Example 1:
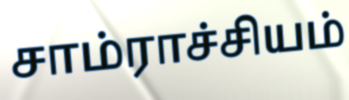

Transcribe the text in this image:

சாம்ராச்சியம்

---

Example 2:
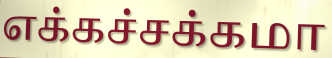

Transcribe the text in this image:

எக்கச்சக்கமா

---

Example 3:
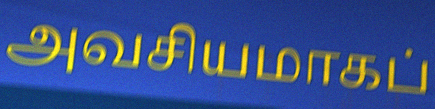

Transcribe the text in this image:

அவசியமாகப்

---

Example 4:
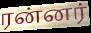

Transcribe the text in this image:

ரன்னர்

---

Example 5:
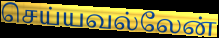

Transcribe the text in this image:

செய்யவல்லேன்